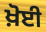
ਖ਼ੋਈ